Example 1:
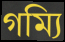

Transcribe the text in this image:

গম্যি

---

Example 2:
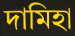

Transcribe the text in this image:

দামিহা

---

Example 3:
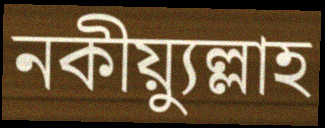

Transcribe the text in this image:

নকীয়্যুল্লাহ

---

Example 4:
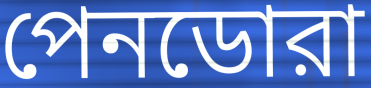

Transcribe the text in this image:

পেনডোরা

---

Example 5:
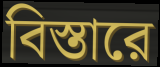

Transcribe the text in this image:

বিস্তারে